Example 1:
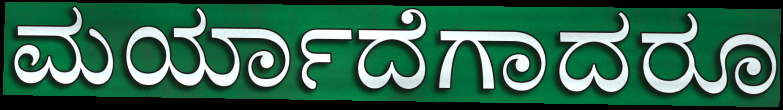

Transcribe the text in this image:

ಮರ್ಯಾದೆಗಾದರೂ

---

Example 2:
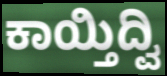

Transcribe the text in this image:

ಕಾಯ್ತಿದ್ವಿ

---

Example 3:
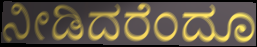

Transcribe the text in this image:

ನೀಡಿದರೆಂದೂ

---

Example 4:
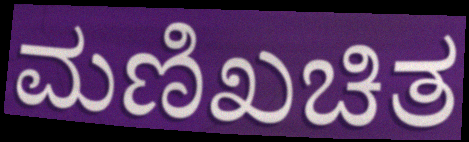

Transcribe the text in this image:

ಮಣಿಖಚಿತ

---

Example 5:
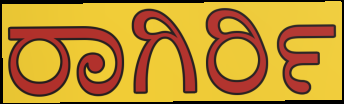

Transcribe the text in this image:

ರಾಗಿರ್ರಿ